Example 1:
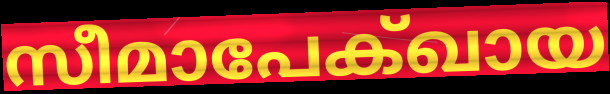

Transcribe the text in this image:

സീമാപേക്ഖായ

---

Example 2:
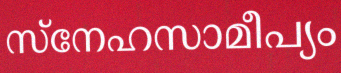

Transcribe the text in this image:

സ്നേഹസാമീപ്യം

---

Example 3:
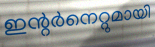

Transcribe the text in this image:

ഇന്റർനെറ്റുമായി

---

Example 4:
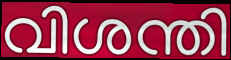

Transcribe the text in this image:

വിശന്തി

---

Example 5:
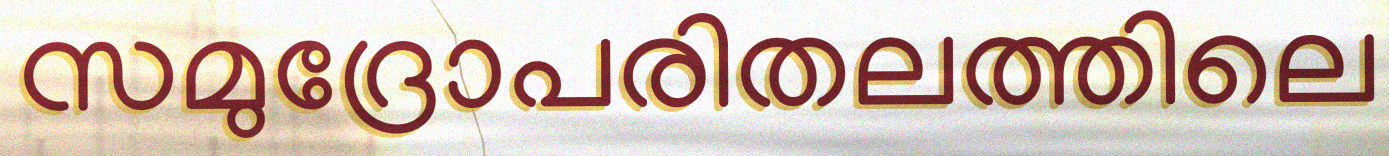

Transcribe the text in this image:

സമുദ്രോപരിതലത്തിലെ